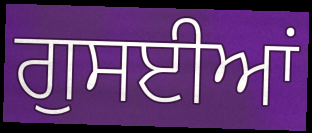
ਗੁਸਈਆਂ